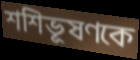
শশিভূষণকে